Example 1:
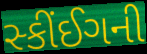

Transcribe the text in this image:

સ્કીંઈગની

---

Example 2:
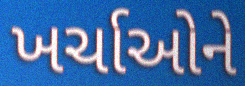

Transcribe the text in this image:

ખર્ચાઓને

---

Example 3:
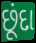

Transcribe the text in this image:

છૂંદા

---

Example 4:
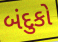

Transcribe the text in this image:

બંદુકો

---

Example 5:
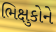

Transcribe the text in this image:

ભિક્ષુકોને